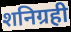
शनिग्रही